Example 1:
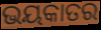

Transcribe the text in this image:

ଭୟକାତର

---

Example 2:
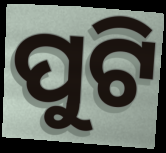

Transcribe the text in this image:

ପୁଟି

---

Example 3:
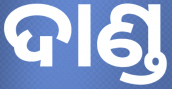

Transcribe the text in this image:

ଦାଣ୍ଡ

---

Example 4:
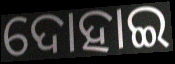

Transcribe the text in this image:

ଦୋହାଇ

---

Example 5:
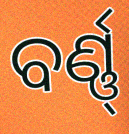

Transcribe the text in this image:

ବର୍ଣ୍ଣ୍